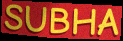
SUBHA